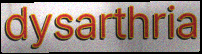
dysarthria